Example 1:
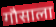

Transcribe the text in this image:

गौसाला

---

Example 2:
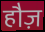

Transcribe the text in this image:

हौज़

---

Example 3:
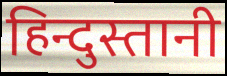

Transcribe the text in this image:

हिन्‍दुस्‍तानी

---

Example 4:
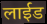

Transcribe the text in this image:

लाईड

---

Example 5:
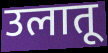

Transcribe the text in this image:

उलातू